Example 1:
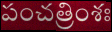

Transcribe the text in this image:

పంచత్రింశః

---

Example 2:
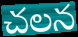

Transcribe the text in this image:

చలన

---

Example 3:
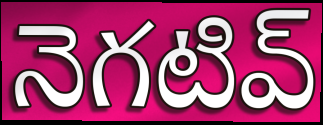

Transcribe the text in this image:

నెగటివ్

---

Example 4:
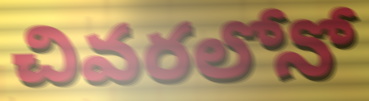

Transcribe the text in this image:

చివరలోనో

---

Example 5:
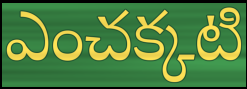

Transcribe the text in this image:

ఎంచక్కటి